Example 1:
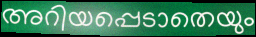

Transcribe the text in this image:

അറിയപ്പെടാതെയും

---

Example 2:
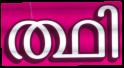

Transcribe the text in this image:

ത്ഥി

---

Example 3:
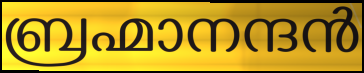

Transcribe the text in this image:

ബ്രഹ്മാനന്ദൻ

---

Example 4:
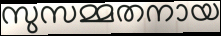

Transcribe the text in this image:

സുസമ്മതനായ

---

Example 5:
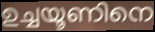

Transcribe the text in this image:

ഉച്ചയൂണിനെ